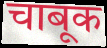
चाबूक